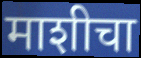
माशीचा